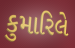
કુમારિલે